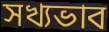
সখ্যভাব